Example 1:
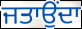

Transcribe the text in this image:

ਜਤਾਉਂਦਾ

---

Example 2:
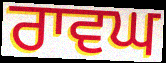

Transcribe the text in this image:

ਰਾਵਘ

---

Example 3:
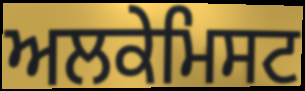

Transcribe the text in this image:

ਅਲਕੇਮਿਸਟ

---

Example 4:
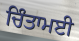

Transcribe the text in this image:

ਚਿੰਤਾਮਈ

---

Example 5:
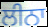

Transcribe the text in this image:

ਲੀਨਾ